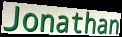
Jonathan